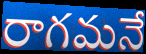
రాగమనే